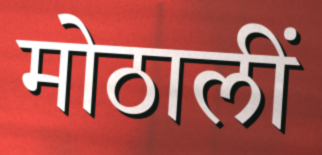
मोठालीं